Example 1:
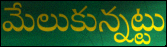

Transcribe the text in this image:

మేలుకున్నట్టు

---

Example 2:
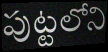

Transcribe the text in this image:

పుట్టలోని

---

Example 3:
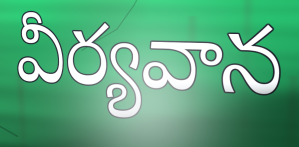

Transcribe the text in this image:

వీర్యవాన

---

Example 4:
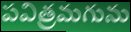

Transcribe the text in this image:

పవిత్రమగును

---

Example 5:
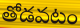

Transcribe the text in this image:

తోడవటం